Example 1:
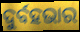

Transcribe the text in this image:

ଦୁର୍ବହଭାର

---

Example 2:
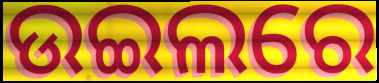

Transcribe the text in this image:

ଉଇଲରେ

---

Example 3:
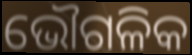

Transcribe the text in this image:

ଭୌଗଳିକ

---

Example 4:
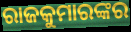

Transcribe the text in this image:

ରାଜକୁମାରଙ୍କର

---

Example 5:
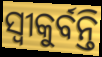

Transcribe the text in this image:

ସ୍ଵୀକୁର୍ବନ୍ତି